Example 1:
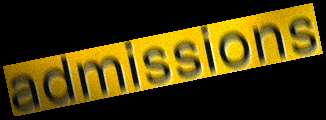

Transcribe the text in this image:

admissions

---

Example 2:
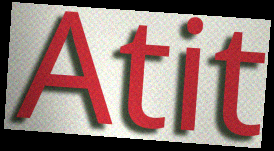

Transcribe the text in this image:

Atit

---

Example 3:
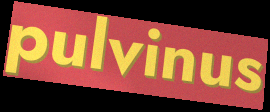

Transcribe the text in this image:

pulvinus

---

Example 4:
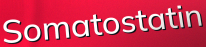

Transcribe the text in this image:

Somatostatin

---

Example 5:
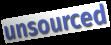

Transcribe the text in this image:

unsourced